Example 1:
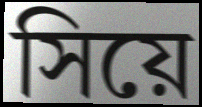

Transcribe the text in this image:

সিয়ে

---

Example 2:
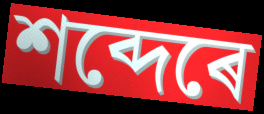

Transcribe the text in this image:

শব্দেৰে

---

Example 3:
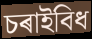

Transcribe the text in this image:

চৰাইবিধ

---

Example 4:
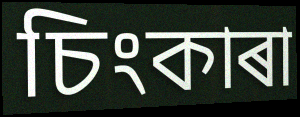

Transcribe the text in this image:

চিংকাৰা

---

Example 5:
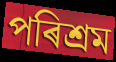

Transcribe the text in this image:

পৰিশ্ৰম